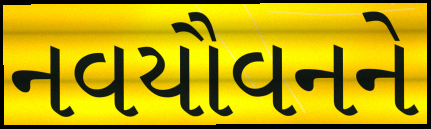
નવયૌવનને